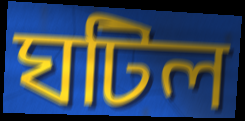
ঘটিল